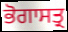
ਭੋਗਾਸਤ੍ਰ